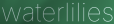
waterlilies